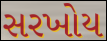
સરખોય